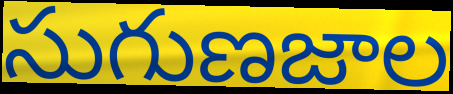
సుగుణజాల